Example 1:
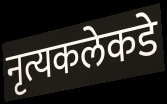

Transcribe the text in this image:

नृत्यकलेकडे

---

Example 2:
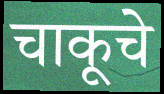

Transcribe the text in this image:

चाकूचे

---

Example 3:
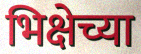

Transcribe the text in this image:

भिक्षेच्या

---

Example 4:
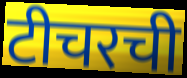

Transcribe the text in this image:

टीचरची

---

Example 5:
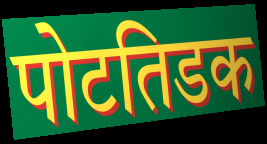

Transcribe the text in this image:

पोटतिडक